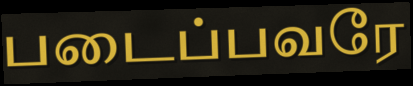
படைப்பவரே